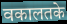
वकालतके